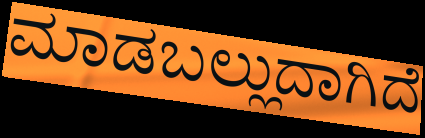
ಮಾಡಬಲ್ಲುದಾಗಿದೆ